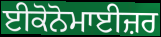
ਈਕੋਨੋਮਾਈਜ਼ਰ